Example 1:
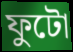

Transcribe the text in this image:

ফুটো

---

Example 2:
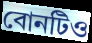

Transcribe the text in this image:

বোনটিও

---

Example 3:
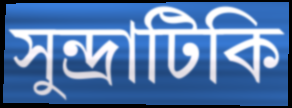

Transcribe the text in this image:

সুন্দ্রাটিকি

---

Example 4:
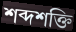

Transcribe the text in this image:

শব্দশক্তি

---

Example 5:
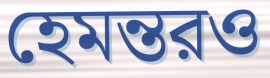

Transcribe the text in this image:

হেমন্তরও